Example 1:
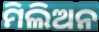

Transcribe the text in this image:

ମିଲିଅନ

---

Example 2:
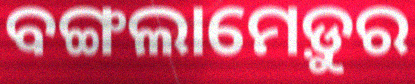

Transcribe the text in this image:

ବଙ୍ଗଲାମେଡ଼ୁର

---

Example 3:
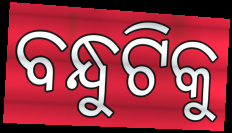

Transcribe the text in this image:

ବନ୍ଧୁଟିକୁ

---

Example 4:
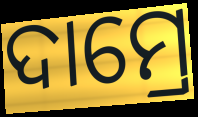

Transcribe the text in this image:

ଦାମ୍ରେ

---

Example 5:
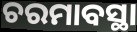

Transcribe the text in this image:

ଚରମାବସ୍ଥା